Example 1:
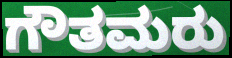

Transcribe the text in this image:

ಗೌತಮರು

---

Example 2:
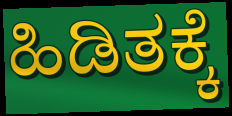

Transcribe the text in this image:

ಹಿಡಿತಕ್ಕೆ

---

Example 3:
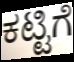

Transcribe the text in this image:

ಕಟ್ಟಿಗೆ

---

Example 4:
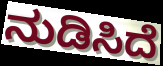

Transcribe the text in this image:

ನುಡಿಸಿದೆ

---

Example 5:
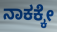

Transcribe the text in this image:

ನಾಕಕ್ಕೇ